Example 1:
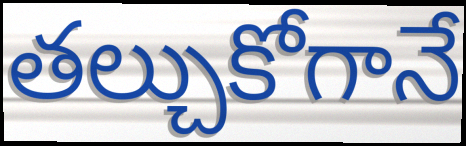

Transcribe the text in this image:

తల్చుకోగానే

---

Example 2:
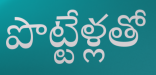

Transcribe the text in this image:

పొట్టేళ్లతో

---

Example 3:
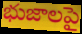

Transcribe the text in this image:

భుజాలపై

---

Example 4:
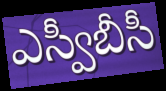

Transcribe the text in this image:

ఎస్వీబీసీ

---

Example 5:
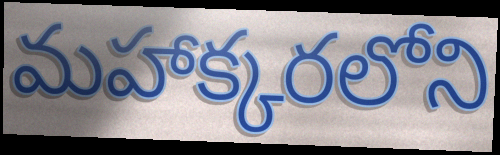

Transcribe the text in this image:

మహాక్కరలోని